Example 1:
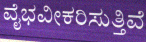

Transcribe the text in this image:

ವೈಭವೀಕರಿಸುತ್ತಿವೆ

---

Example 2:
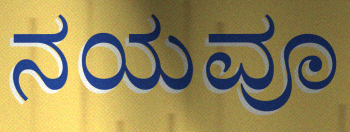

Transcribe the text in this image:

ನಯವೂ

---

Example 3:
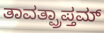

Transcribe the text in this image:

ತಾವತ್ಪ್ರಾಪ್ತಮ್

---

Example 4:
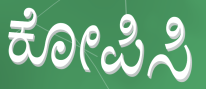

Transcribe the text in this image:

ಕೋಪಿಸಿ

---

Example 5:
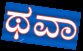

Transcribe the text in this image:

ಥವಾ